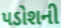
પડોશની